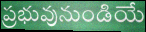
ప్రభువునుండియే